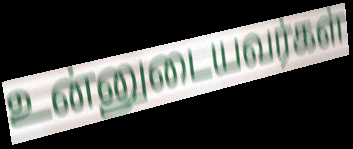
உன்னுடையவர்கள்